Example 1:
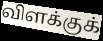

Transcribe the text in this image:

விளக்குக்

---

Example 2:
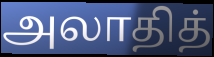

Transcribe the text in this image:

அலாதித்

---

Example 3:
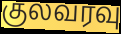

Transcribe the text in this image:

குலவரவு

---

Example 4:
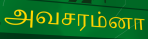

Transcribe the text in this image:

அவசரம்னா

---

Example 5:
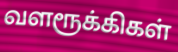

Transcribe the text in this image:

வளரூக்கிகள்